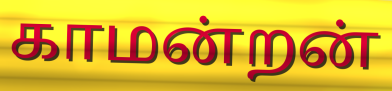
காமன்றன்